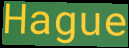
Hague